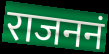
राजननं